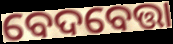
ବେଦବେତ୍ତା